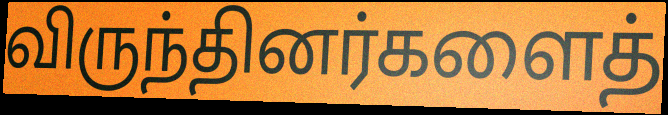
விருந்தினர்களைத்